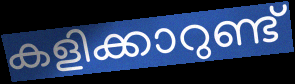
കളിക്കാറുണ്ട്